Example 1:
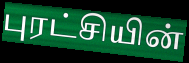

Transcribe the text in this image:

புரட்சியின்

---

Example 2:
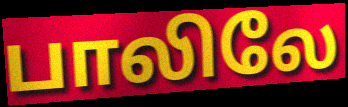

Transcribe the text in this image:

பாலிலே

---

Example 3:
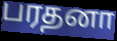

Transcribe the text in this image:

பரதனா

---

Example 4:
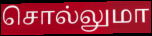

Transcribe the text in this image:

சொல்லுமா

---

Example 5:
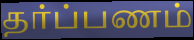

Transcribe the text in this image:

தர்ப்பணம்